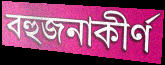
বহুজনাকীর্ণ